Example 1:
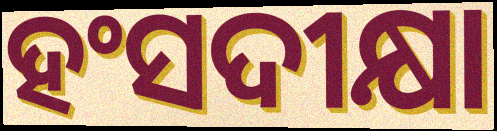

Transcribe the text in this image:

ହଂସଦୀକ୍ଷା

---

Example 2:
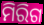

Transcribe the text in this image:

ମିରିଗ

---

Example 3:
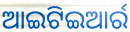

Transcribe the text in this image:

ଆଇଟିଇଆର୍ର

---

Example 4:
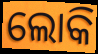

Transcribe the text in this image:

ଲୋକି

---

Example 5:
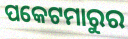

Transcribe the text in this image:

ପକେଟମାରୁର